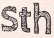
Sth